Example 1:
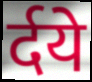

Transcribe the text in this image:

र्दये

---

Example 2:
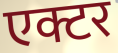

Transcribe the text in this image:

एक्टर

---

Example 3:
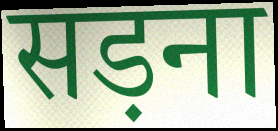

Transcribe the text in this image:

सड़ना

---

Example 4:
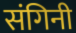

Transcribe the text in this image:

संगिनी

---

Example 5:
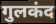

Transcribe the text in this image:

गुलकंद